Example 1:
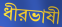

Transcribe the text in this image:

ধীরভাষী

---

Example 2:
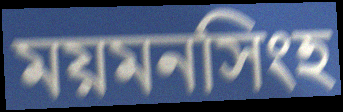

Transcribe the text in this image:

ময়মনসিংহ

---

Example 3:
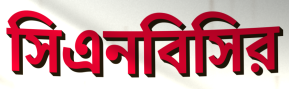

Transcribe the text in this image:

সিএনবিসির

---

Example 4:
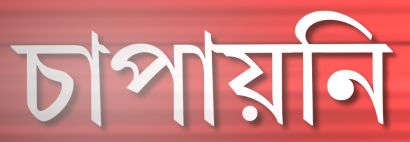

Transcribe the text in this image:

চাপায়নি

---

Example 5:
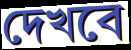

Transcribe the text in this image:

দেখবে